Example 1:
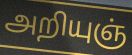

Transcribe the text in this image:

அறியுஞ்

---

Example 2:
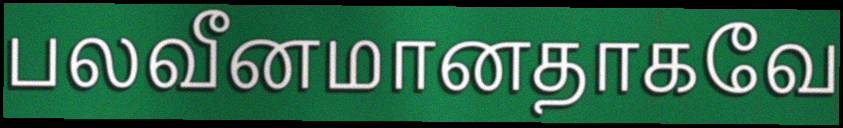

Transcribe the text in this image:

பலவீனமானதாகவே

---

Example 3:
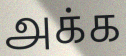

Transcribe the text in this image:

அக்க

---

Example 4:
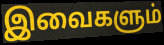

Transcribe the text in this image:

இவைகளும்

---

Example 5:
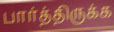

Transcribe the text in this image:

பார்த்திருக்க